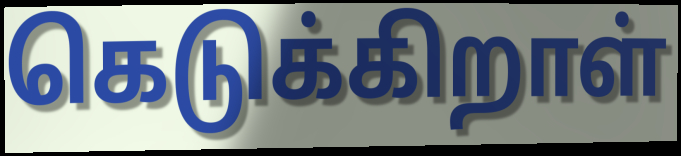
கெடுக்கிறாள்